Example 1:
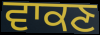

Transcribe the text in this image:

ਵਾਕਣ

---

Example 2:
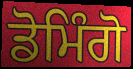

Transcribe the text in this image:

ਡੋਮਿੰਗੋ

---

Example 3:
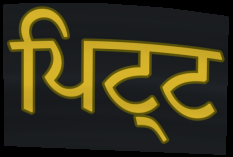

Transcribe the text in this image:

ਪਿਟ੍ਟ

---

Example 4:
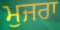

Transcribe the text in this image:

ਮੁਜਰਾ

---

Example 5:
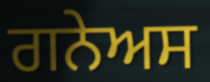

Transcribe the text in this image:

ਗਨੇਅਸ